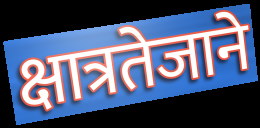
क्षात्रतेजाने